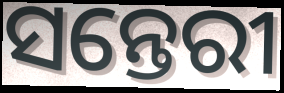
ସନ୍ତେରୀ